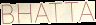
BHATTA